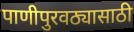
पाणीपुरवठ्यासाठी